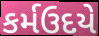
કર્મઉદયે